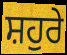
ਸ਼ਹੁਰੇ